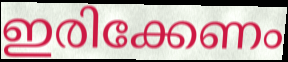
ഇരിക്കേണം